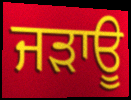
ਜੜਾਊ